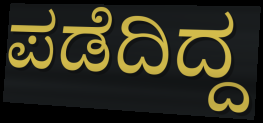
ಪಡೆದಿದ್ದ